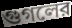
গুগলের